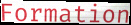
Formation